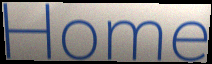
Home